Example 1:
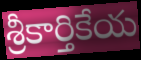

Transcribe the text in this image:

శ్రీకార్తికేయ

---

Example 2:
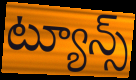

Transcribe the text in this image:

ట్యూన్స్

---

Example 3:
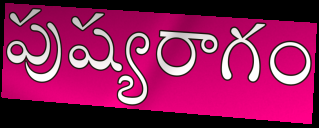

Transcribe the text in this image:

పుష్యరాగం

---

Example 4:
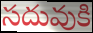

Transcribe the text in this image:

సదువుకి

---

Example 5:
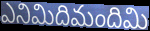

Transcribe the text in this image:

ఎనిమిదిమందిమి